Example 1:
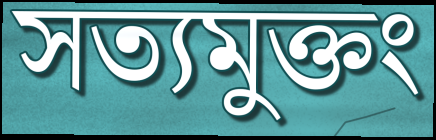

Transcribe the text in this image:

সত্যমুক্তং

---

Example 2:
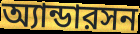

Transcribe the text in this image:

অ্যান্ডারসন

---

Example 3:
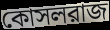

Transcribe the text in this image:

কোসলরাজ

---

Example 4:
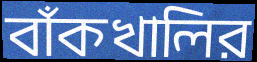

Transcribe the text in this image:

বাঁকখালির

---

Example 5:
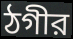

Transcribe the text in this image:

ঠগীর